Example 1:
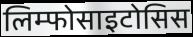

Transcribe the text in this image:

लिम्फोसाइटोसिस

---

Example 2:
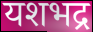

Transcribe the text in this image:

यशभद्र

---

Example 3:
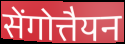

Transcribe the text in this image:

सेंगोत्तैयन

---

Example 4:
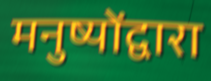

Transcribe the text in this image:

मनुष्योंद्वारा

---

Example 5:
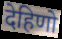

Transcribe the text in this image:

देहिणो